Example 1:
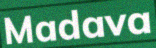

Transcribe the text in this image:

Madava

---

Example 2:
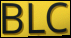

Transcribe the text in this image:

BLC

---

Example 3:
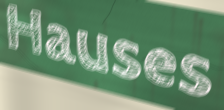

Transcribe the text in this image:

Hauses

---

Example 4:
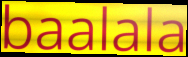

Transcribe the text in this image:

baalala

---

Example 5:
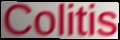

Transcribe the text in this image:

Colitis